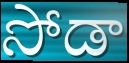
సోడా